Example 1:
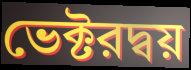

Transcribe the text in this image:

ভেক্টরদ্বয়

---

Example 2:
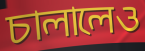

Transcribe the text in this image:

চালালেও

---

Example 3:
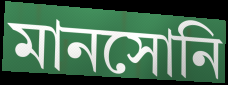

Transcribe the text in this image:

মানসোনি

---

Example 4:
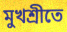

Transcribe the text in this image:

মুখশ্রীতে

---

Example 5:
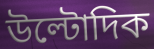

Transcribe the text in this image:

উল্টোদিক